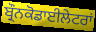
ਬ੍ਰੌਨਕੋਡਾਈਲੇਟਰਾਂ